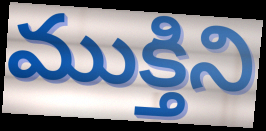
ముక్తిని